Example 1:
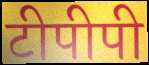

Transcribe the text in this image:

टीपीपी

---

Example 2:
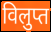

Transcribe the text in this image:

विलुप्त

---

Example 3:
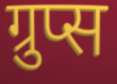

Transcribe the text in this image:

ग्रुप्स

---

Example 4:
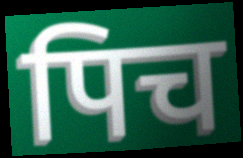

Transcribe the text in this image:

पिच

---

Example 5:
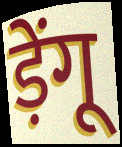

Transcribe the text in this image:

ड़ेंगू